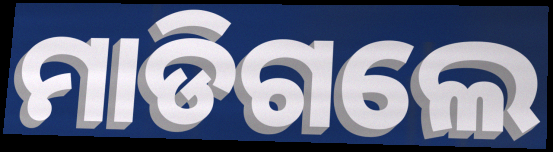
ମାଡିଗଲେ